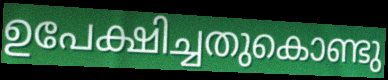
ഉപേക്ഷിച്ചതുകൊണ്ടു